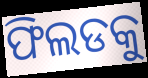
ଫିଲଡକୁ